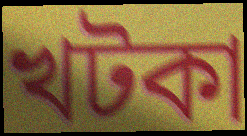
খটকা